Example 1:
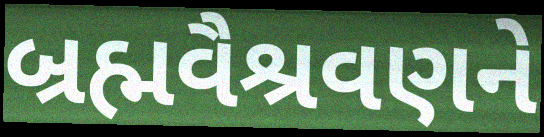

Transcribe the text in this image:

બ્રહ્મવૈશ્રવણને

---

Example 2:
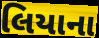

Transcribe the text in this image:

લિયાના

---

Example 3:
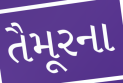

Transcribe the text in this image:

તૈમૂરના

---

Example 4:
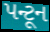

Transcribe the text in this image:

પન્ટૂન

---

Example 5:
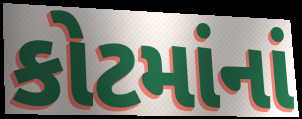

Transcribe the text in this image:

કોટમાંનાં